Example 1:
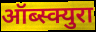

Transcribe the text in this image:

ऑब्स्क्युरा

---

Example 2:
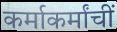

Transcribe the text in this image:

कर्माकर्मांचीं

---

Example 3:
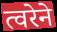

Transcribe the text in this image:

त्वरेने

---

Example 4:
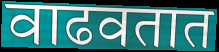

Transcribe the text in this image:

वाढवतात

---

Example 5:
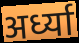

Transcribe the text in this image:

अर्ध्या